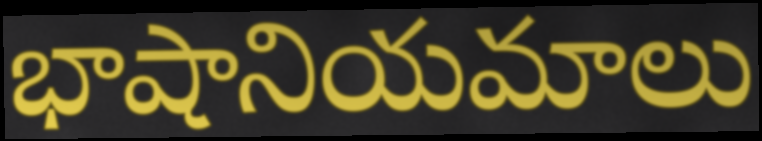
భాషానియమాలు